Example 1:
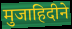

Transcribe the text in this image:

मुजाहिदीने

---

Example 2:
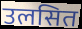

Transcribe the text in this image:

उलसित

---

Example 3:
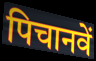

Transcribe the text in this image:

पिचानवें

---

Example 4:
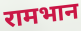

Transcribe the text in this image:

रामभान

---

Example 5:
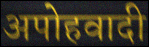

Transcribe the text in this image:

अपोहवादी